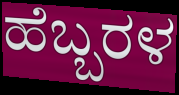
ಹೆಬ್ಬರಳ